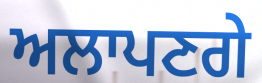
ਅਲਾਪਣਗੇ